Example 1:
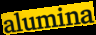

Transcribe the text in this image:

alumina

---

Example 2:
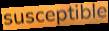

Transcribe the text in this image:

susceptible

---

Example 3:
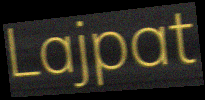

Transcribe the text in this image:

Lajpat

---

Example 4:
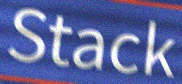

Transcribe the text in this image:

Stack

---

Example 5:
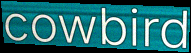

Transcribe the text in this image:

cowbird